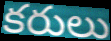
కరులు